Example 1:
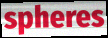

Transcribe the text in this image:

spheres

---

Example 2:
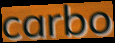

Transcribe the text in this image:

carbo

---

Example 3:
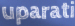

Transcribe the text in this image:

uparati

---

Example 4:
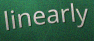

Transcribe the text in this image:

linearly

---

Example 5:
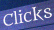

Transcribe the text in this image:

Clicks